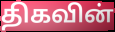
திகவின்